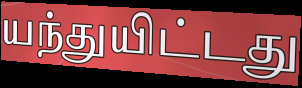
யந்துயிட்டது